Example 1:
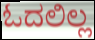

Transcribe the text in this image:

ಓದಲಿಲ್ಲ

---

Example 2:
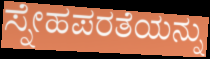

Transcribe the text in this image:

ಸ್ನೇಹಪರತೆಯನ್ನು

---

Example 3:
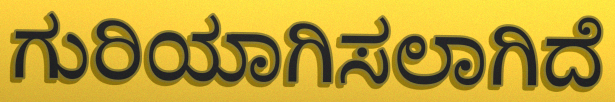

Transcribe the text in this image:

ಗುರಿಯಾಗಿಸಲಾಗಿದೆ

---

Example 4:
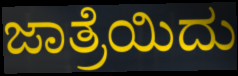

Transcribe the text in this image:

ಜಾತ್ರೆಯಿದು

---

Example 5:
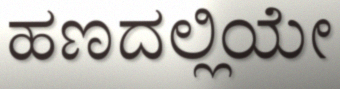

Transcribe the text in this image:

ಹಣದಲ್ಲಿಯೇ